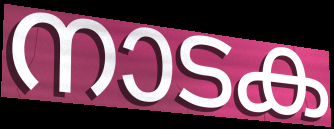
നാടക